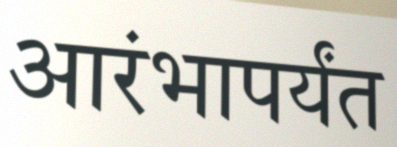
आरंभापर्यंत